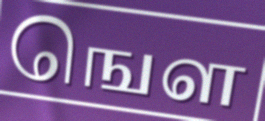
ஙௌ